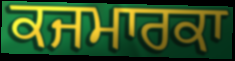
ਕਜਮਾਰਕਾ